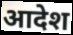
आदेश